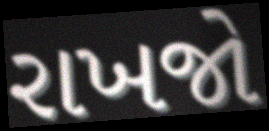
રાખજો